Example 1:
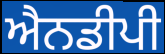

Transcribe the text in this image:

ਐਨਡੀਪੀ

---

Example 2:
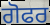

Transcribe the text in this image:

ਗੋਫਰ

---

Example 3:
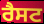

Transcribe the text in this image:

ਰੈਸਟ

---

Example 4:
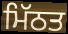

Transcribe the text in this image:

ਮਿੱਠਤ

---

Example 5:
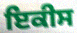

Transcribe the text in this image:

ਇਕੀਸ